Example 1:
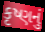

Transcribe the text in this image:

કૃષ્ણનું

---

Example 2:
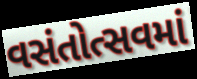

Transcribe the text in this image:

વસંતોત્સવમાં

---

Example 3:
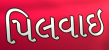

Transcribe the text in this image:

પિલવાઇ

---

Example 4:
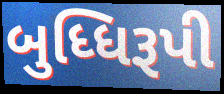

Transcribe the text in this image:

બુધ્ધિરૂપી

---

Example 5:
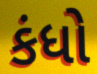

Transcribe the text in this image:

કંધો